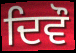
ਦਿਵੌ